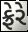
ફ્રેરે